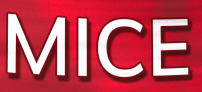
MICE